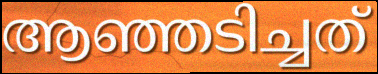
ആഞ്ഞടിച്ചത്